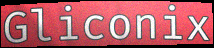
Gliconix